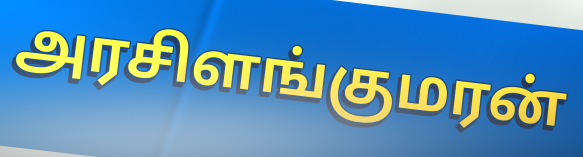
அரசிளங்குமரன்